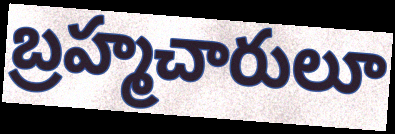
బ్రహ్మచారులూ